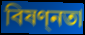
বিষণ্নতা